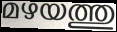
മഴയത്തു